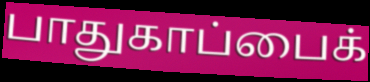
பாதுகாப்பைக்